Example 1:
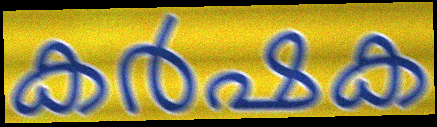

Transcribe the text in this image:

കർഷക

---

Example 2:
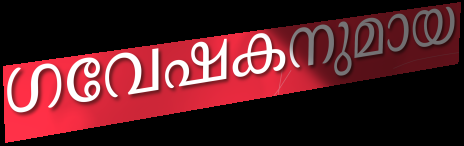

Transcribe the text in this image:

ഗവേഷകനുമായ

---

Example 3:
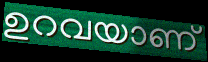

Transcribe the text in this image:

ഉറവയാണ്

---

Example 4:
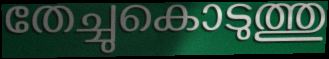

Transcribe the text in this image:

തേച്ചുകൊടുത്തു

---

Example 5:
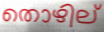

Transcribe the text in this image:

തൊഴില്